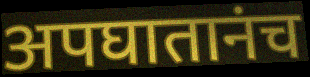
अपघातानंच